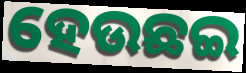
ହେଉଛଇ